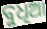
ବୁଧିଆ